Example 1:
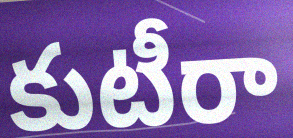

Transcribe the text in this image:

కుటీరా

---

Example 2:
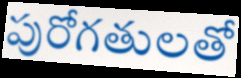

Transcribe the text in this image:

పురోగతులతో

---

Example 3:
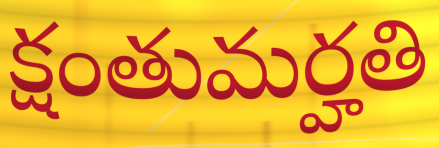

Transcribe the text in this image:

క్షంతుమర్హతి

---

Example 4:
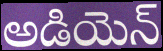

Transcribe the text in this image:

అడియెన్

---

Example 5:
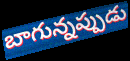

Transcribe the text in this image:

బాగున్నప్పుడు